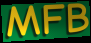
MFB